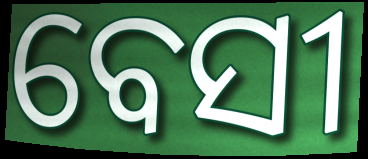
ବେସୀ